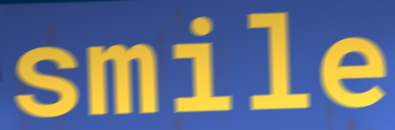
smile